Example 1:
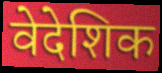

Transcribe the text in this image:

वेदेशिक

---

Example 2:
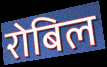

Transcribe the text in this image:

रोबिल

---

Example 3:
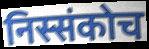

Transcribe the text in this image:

निस्संकोच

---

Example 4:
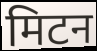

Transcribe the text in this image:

मिटन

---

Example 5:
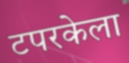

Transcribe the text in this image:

टपरकेला